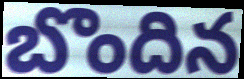
బొందిన